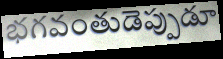
భగవంతుడెప్పుడూ